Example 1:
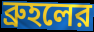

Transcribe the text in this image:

ব্রুহলের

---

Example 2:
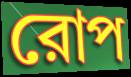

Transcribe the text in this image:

রোপ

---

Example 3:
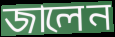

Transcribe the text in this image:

জালেন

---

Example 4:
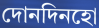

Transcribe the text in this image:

দোনদিনহো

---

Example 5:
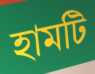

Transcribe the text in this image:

হামটি